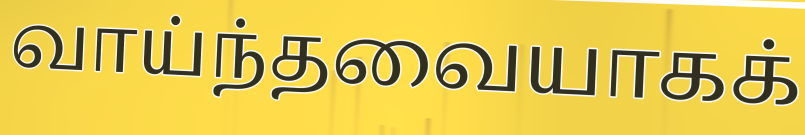
வாய்ந்தவையாகக்